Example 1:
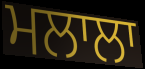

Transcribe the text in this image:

ਮਲਾਲਾ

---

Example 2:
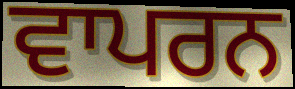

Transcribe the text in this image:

ਵਾਪਰਨ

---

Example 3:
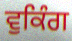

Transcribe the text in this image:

ਵੁਕਿੰਗ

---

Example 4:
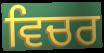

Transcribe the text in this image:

ਵਿਚਰ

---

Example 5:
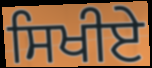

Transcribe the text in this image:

ਸਿਖੀਏ